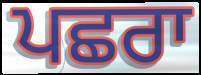
ਪਛਰਾ